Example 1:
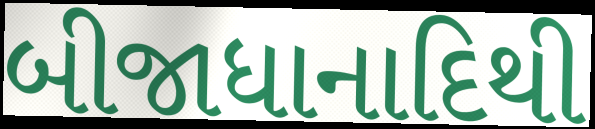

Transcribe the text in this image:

બીજાધાનાદિથી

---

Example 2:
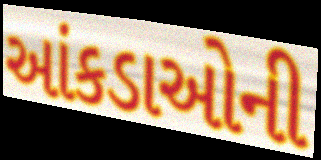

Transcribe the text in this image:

આંકડાઓની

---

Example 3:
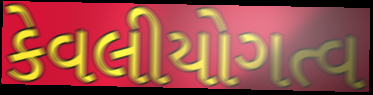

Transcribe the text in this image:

કેવલીયોગત્વ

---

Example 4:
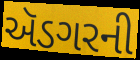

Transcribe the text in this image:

ઍડગરની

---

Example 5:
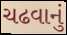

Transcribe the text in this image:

ચઢવાનું